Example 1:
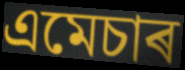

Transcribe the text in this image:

এমেচাৰ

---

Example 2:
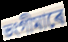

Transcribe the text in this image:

ভংগীমাৰে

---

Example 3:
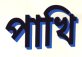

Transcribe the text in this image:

পাখি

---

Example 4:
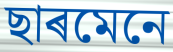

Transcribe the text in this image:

ছাৰমেনে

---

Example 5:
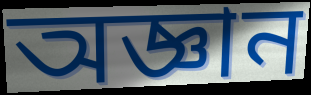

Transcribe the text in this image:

অজ্ঞান